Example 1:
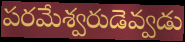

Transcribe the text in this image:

పరమేశ్వరుడెవ్వడు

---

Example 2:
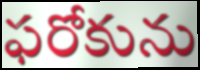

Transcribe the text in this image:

ఫరోకును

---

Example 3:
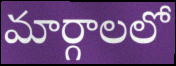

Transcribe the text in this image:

మార్గాలలో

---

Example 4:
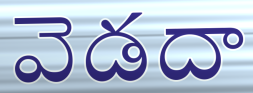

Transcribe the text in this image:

వెడదా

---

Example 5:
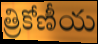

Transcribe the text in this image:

త్రికోణీయ